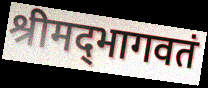
श्रीमद्‌भागवतं